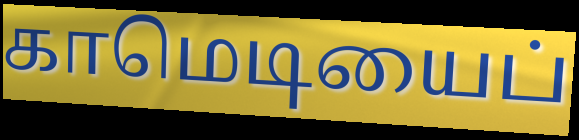
காமெடியைப்